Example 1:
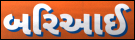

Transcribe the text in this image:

બરિઆઈ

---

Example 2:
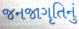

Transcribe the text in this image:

જનજાગૃતિનું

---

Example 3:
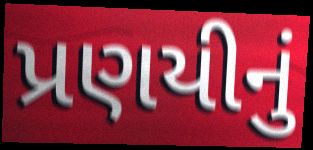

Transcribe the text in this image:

પ્રણયીનું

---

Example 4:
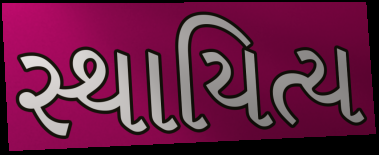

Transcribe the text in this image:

સ્થાયિત્ય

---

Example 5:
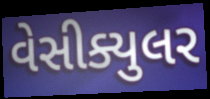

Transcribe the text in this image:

વેસીક્યુલર